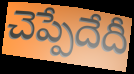
చెప్పేదేదీ